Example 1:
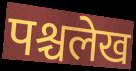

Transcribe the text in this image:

पश्चलेख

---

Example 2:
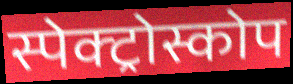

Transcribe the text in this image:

स्पेक्ट्रोस्कोप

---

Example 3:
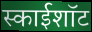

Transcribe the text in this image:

स्काईशॉट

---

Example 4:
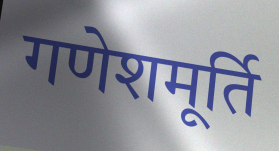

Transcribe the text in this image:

गणेशमूर्ति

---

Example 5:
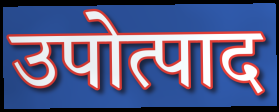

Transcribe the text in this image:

उपोत्पाद